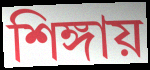
শিঙ্গায়